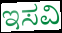
ಇಸವಿ